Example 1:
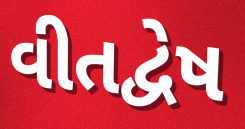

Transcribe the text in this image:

વીતદ્વેષ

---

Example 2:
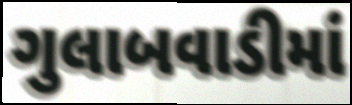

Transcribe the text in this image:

ગુલાબવાડીમાં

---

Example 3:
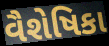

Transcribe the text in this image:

વૈશેષિકા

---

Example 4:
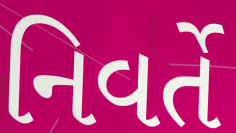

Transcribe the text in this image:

નિવર્તે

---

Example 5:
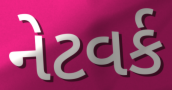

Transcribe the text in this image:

નેટવર્ક